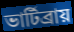
ভার্টিব্রায়